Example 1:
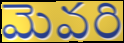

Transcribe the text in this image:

మెవరి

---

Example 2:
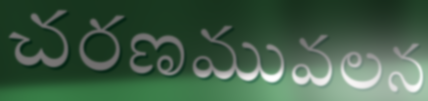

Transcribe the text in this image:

చరణమువలన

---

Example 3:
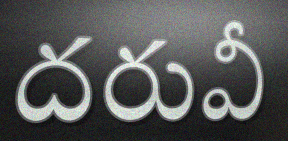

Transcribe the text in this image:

దరువీ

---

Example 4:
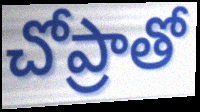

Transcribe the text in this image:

చోప్రాతో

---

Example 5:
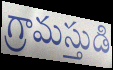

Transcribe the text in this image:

గ్రామస్తుడి